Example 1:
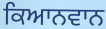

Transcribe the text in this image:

ਕਿਆਨਵਾਨ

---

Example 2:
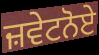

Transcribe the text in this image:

ਜ਼ਵੇਟਨੋਏ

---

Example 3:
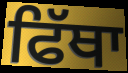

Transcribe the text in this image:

ਫਿੱਥਾ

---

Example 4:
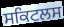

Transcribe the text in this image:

ਸਕਿਟਲਸ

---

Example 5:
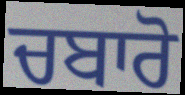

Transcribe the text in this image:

ਚਬਾਰੋ